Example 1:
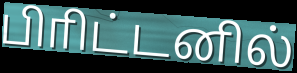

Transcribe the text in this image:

பிரிட்டனில்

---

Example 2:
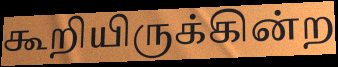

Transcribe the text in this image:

கூறியிருக்கின்ற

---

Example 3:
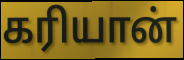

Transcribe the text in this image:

கரியான்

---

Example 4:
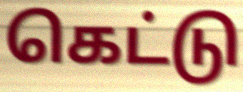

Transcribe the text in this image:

கெட்டு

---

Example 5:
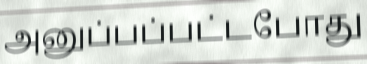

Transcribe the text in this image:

அனுப்பப்பட்டபோது